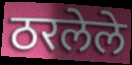
ठरलेले